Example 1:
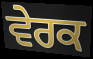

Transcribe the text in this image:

ਵੇਰਕ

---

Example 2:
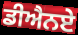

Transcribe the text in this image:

ਡੀਐਨਏ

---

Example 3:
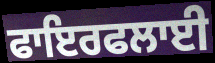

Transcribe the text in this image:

ਫਾਇਰਫਲਾਈ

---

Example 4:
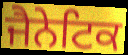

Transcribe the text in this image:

ਜੈਨੇਟਿਕ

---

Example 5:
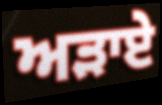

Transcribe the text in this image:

ਅੜਾਏ